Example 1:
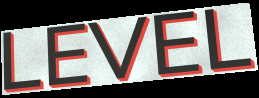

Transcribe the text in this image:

LEVEL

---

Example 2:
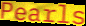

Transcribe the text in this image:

Pearls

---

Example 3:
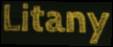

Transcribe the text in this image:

Litany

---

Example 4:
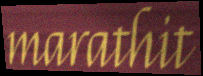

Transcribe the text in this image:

marathit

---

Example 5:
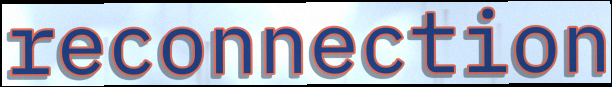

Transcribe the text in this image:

reconnection